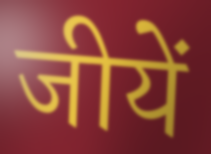
जीयें